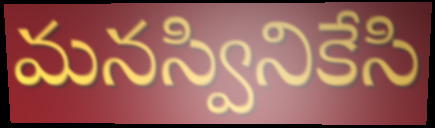
మనస్వినికేసి